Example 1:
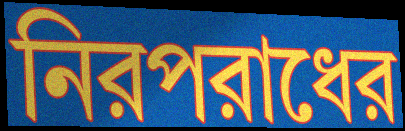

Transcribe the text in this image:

নিরপরাধের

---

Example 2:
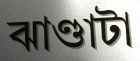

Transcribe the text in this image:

ঝাণ্ডাটা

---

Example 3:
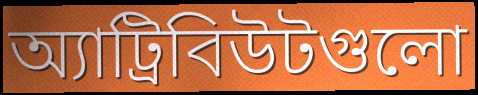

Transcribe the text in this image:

অ্যাট্রিবিউটগুলো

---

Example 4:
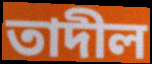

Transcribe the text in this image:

তাদীল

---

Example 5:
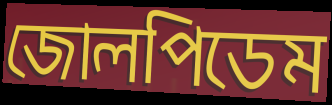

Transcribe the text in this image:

জোলপিডেম